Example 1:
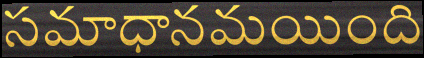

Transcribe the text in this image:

సమాధానమయింది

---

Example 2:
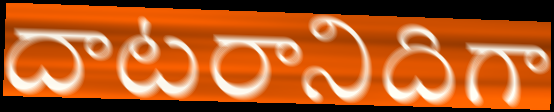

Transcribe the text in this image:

దాటరానిదిగా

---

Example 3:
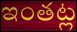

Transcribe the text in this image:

ఇంతట్ల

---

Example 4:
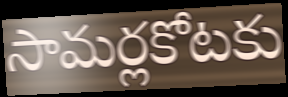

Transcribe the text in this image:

సామర్లకోటకు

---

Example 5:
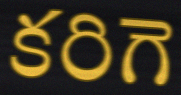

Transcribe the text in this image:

కరిగె